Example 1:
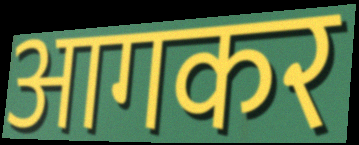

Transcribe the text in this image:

आगकर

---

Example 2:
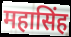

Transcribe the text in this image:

महासिंह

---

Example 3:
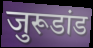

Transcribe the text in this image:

जुरूडांड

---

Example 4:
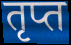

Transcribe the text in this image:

तृप्त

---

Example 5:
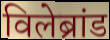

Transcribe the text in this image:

विलेब्रांड